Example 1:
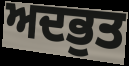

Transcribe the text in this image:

ਅਦਭੁਤ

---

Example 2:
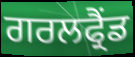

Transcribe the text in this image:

ਗਰਲਫ੍ਰੈਂਡ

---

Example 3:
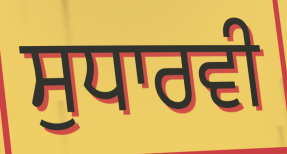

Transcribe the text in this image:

ਸੁਧਾਰਵੀ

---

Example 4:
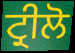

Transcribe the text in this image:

ਟ੍ਰੀਲੋ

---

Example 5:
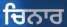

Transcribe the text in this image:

ਚਿਨਾਰ